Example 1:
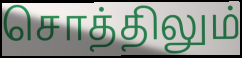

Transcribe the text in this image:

சொத்திலும்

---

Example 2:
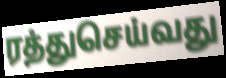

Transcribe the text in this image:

ரத்துசெய்வது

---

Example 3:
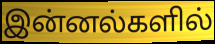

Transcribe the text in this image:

இன்னல்களில்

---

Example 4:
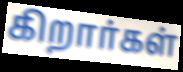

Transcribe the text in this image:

கிறார்கள்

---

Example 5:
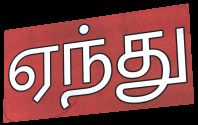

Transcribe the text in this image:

ஏந்து